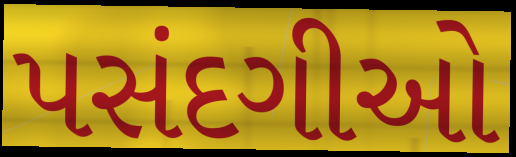
પસંદગીઓ